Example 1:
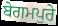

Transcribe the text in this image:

ਬੇਗਮਪੁਰੇ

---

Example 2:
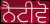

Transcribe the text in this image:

ਨੈਟੀਵੋ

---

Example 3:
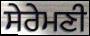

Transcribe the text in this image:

ਸੇਰੇਮਣੀ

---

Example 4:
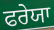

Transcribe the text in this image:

ਫਰੇਯਾ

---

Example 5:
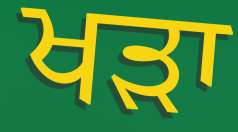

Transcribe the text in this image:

ਖਡ਼ਾ